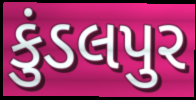
કુંડલપુર